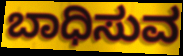
ಬಾಧಿಸುವ